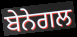
ਬੇਨੇਗਲ